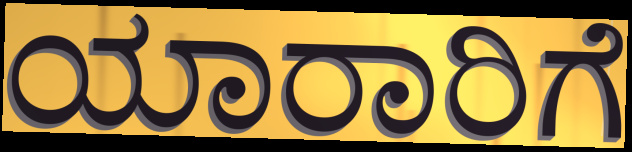
ಯಾರಾರಿಗೆ